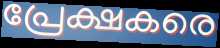
പ്രേക്ഷകരെ